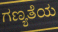
ಗಣ್ಯತೆಯ